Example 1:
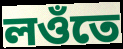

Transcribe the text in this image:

লওঁতে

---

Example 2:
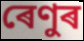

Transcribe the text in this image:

ৰেণুৰ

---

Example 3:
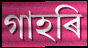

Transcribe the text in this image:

গাহৰি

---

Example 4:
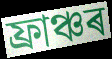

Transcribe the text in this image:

ফ্ৰাঞ্চৰ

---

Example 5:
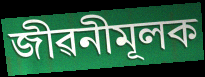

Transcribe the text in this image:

জীৱনীমূলক